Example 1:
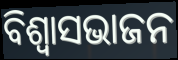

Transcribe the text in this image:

ବିଶ୍ୱାସଭାଜନ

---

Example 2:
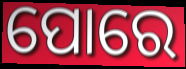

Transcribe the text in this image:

ପୋରେ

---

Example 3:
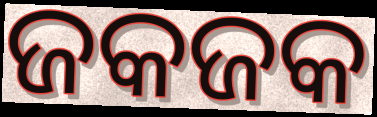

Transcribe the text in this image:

ଜକଜକ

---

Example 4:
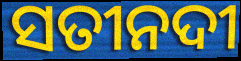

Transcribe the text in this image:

ସତୀନଦୀ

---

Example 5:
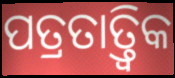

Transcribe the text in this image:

ପତ୍ରତାତ୍ତ୍ୱିକ